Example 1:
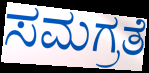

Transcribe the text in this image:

ಸಮಗ್ರತೆ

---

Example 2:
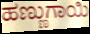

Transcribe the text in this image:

ಹಣ್ಣುಗಾಯಿ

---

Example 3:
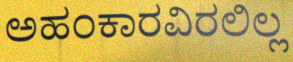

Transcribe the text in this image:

ಅಹಂಕಾರವಿರಲಿಲ್ಲ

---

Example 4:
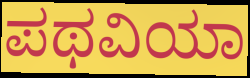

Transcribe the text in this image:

ಪಥವಿಯಾ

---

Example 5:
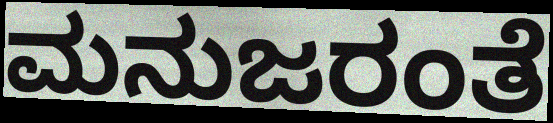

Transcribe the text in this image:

ಮನುಜರಂತೆ